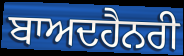
ਬਾਅਦਹੈਨਰੀ